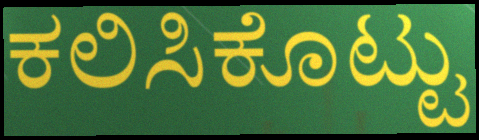
ಕಲಿಸಿಕೊಟ್ಟು